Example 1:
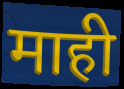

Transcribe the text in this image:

माही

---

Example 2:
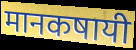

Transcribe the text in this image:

मानकषायी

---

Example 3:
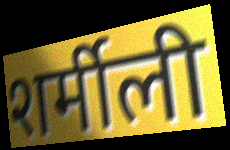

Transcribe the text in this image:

शर्मीली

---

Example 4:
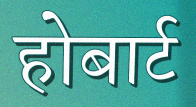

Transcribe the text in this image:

होबार्ट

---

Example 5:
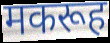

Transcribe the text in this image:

मकरूह